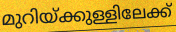
മുറിയ്ക്കുള്ളിലേക്ക്